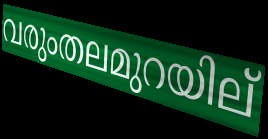
വരുംതലമുറയില്